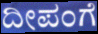
ದೀಪಂಗೆ